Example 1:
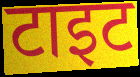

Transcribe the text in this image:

टाइट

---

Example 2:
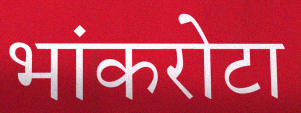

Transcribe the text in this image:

भांकरोटा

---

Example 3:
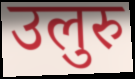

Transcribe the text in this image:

उलुरु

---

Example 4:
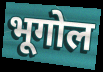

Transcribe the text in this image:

भूगोल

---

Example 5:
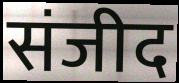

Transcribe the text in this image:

संजीद